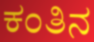
ಕಂತಿನ